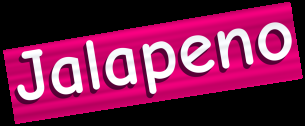
Jalapeno